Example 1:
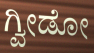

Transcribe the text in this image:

ಗ್ವೀಡೋ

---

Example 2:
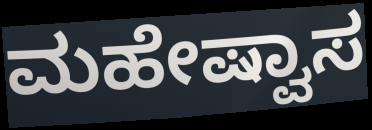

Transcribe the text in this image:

ಮಹೇಷ್ವಾಸ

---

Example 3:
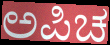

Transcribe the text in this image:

ಅಪಿಚ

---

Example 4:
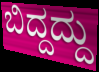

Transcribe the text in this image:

ಬಿದ್ದದ್ದು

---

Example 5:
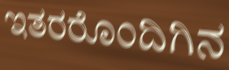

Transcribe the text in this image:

ಇತರರೊಂದಿಗಿನ